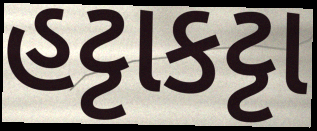
હટ્ટાકટ્ટા